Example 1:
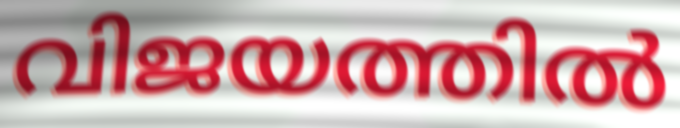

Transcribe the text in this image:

വിജയത്തിൽ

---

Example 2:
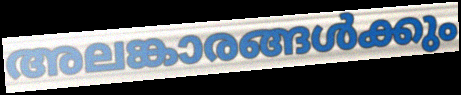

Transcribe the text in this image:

അലങ്കാരങ്ങൾക്കും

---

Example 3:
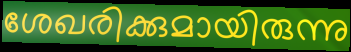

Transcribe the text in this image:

ശേഖരിക്കുമായിരുന്നു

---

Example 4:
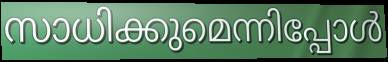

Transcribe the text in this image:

സാധിക്കുമെന്നിപ്പോൾ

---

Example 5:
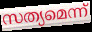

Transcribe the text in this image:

സത്യമെന്ന്